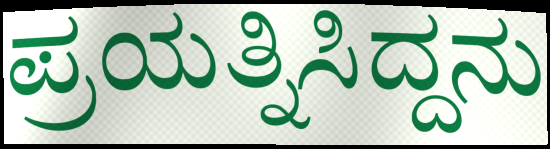
ಪ್ರಯತ್ನಿಸಿದ್ದನು